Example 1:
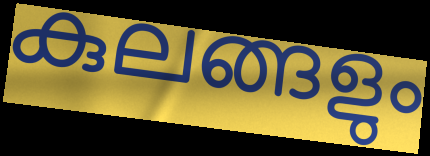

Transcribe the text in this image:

കുലങ്ങളും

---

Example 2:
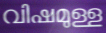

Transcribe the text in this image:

വിഷമുള്ള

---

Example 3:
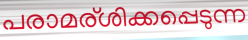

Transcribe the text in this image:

പരാമര്ശിക്കപ്പെടുന്ന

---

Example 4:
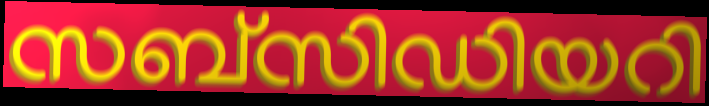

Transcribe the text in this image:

സബ്സിഡിയറി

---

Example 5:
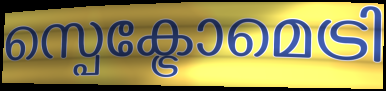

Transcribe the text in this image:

സ്പെക്ട്രോമെട്രി